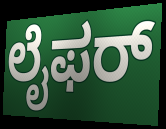
ಲೈಫರ್